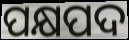
ପକ୍ଷପଦ